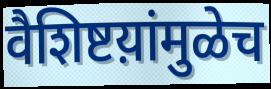
वैशिष्टय़ांमुळेच